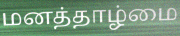
மனத்தாழ்மை